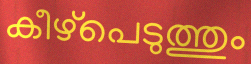
കീഴ്പെടുത്തും